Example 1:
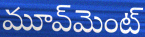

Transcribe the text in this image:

మూవ్‌మెంట్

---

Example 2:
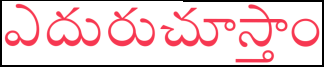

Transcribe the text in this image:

ఎదురుచూస్తాం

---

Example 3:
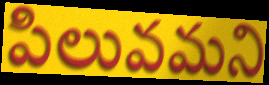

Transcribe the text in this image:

పిలువమని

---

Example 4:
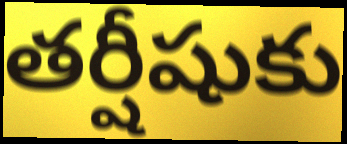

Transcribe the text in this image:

తర్షీషుకు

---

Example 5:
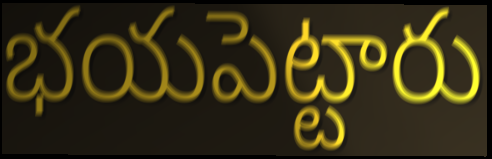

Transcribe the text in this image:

భయపెట్టారు